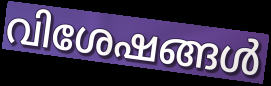
വിശേഷങ്ങൾ